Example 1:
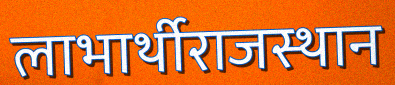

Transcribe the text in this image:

लाभार्थीराजस्थान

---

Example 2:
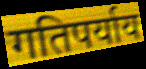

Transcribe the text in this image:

गतिपर्याय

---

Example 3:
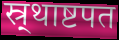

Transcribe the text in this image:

स्र्थाष्टपत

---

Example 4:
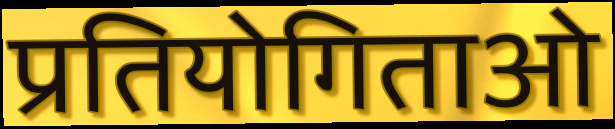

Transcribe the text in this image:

प्रतियोगिताओ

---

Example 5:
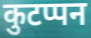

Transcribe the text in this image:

कुटप्पन